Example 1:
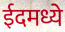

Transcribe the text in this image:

ईदमध्ये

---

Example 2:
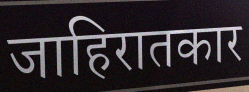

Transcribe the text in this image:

जाहिरातकार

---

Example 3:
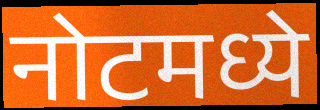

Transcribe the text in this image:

नोटमध्ये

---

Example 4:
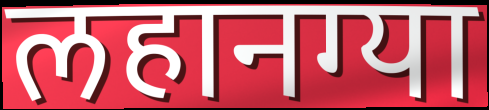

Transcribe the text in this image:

लहानग्या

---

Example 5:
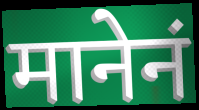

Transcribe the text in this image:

मानेनं